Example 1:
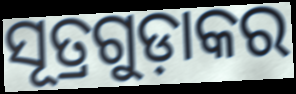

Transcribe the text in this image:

ସୂତ୍ରଗୁଡ଼ାକର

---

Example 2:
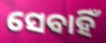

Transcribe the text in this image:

ସେବାହିଁ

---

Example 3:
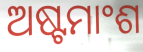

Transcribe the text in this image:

ଅଷ୍ଟମାଂଶ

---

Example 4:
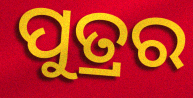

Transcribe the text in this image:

ପୁତ୍ରର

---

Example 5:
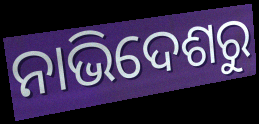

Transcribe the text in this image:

ନାଭିଦେଶରୁ